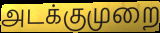
அடக்குமுறை